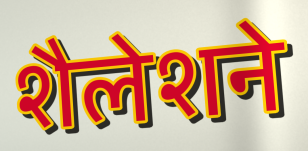
शैलेशने